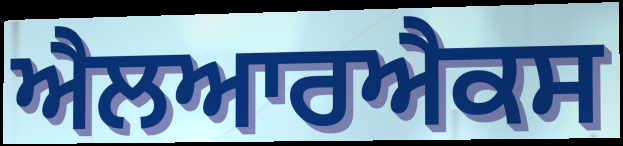
ਐਲਆਰਐਕਸ